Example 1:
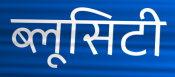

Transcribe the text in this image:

ब्लूसिटी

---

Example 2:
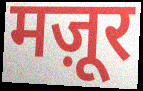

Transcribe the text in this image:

मज़ूर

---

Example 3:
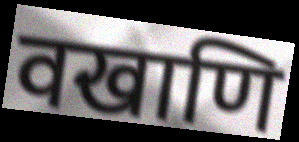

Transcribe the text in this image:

वखाणि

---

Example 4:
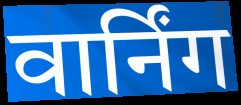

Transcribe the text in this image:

वार्निंग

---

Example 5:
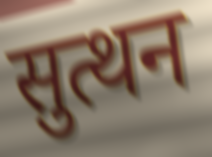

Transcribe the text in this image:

सुत्थन